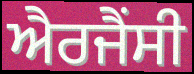
ਐਰਜੈਂਸੀ